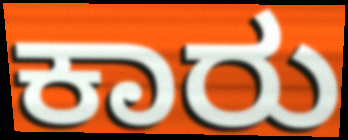
ಕಾರು